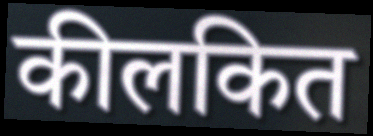
कीलकित